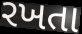
રખતા